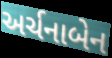
અર્ચનાબેન